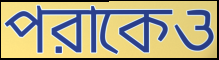
পরাকেও